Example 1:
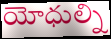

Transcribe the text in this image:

యోధుల్ని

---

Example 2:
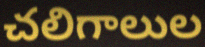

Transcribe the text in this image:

చలిగాలుల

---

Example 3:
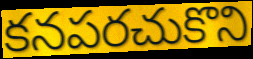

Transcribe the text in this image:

కనపరచుకొని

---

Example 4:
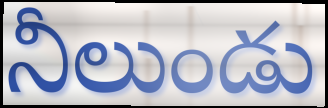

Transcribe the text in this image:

నీలుండు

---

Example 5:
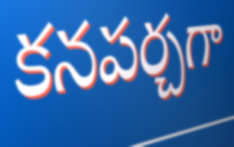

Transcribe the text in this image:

కనపర్చగా